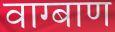
वाग्बाण